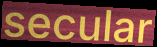
secular